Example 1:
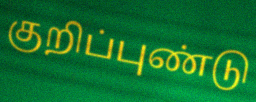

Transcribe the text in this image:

குறிப்புண்டு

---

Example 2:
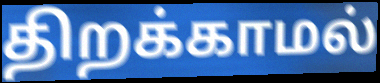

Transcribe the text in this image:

திறக்காமல்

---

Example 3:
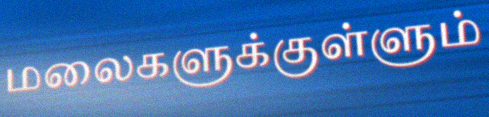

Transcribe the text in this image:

மலைகளுக்குள்ளும்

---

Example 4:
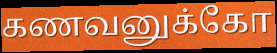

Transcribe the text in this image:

கணவனுக்கோ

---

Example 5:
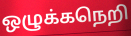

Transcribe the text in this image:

ஒழுக்கநெறி